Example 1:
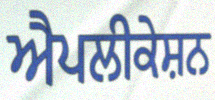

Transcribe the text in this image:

ਐਪਲੀਕੇਸ਼ਨ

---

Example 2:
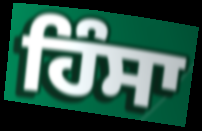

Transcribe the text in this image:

ਹਿੰਸਾ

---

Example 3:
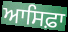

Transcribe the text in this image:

ਆਸਿਫ਼ਾ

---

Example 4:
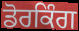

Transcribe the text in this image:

ਡੋਰਕਿੰਗ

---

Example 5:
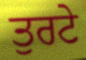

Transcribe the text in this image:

ਤੁਰਟੇ